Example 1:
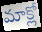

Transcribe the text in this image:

మాక్లో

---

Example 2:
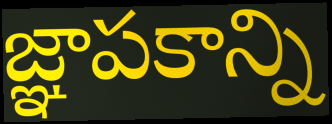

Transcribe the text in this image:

జ్ఞాపకాన్ని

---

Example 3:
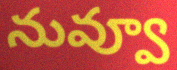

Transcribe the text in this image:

నువ్వూ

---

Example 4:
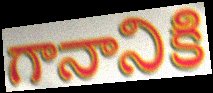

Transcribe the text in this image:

గానానికి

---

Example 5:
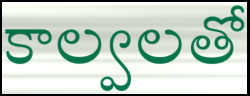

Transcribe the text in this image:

కాల్వలతో